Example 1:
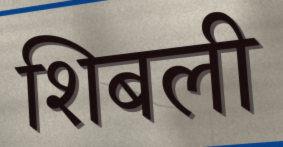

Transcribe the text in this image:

शिबली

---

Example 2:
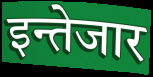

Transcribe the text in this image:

इन्तेजार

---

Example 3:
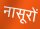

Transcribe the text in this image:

नासूरों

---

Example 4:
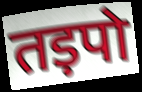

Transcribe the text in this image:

तड़पो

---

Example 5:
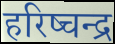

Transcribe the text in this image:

हरिष्चन्द्र